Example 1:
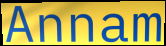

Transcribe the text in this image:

Annam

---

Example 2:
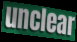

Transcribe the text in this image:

unclear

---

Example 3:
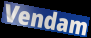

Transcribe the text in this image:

Vendam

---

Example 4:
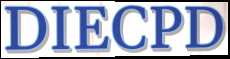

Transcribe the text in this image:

DIECPD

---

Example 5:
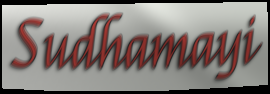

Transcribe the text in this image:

Sudhamayi